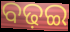
ବଢ଼ଇ